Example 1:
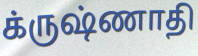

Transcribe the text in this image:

க்ருஷ்ணாதி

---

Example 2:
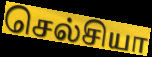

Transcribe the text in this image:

செல்சியா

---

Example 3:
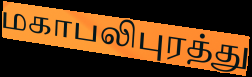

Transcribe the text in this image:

மகாபலிபுரத்து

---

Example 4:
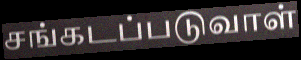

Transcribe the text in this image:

சங்கடப்படுவாள்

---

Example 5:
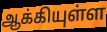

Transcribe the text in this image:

ஆக்கியுள்ள